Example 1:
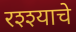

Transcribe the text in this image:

रश्श्याचे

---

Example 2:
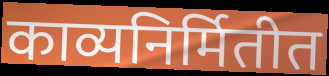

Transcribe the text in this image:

काव्यनिर्मितीत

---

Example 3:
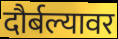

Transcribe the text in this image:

दौर्बल्यावर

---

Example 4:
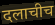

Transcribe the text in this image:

दलाचीच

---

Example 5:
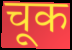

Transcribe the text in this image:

चूक